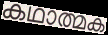
കഥാത്മക